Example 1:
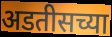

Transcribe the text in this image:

अडतीसच्या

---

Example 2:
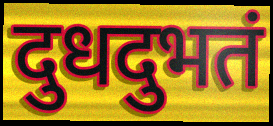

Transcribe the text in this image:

दुधदुभतं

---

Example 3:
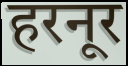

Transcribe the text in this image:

हरनूर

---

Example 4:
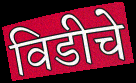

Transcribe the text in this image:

विडीचे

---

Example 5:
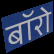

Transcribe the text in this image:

बॉरो